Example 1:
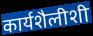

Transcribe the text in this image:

कार्यशैलीशी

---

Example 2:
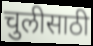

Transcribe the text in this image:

चुलीसाठी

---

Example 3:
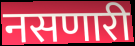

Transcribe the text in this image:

नसणारी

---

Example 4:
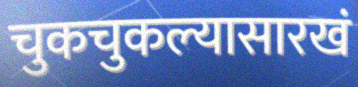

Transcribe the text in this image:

चुकचुकल्यासारखं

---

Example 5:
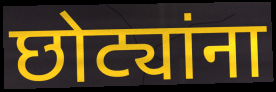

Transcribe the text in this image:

छोट्यांना